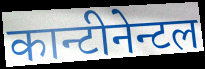
कान्टीनेन्टल